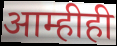
आम्हीही